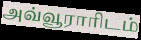
அவ்வூராரிடம்